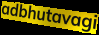
adbhutavagi